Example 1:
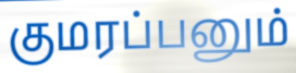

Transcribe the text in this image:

குமரப்பனும்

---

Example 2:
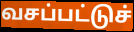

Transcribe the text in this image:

வசப்பட்டுச்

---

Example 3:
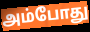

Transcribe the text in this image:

அம்போது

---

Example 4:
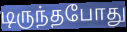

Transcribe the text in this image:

டிருந்தபோது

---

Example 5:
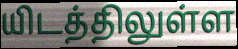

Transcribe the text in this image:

யிடத்திலுள்ள